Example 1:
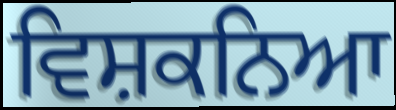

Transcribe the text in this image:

ਵਿਸ਼ਕਨਿਆ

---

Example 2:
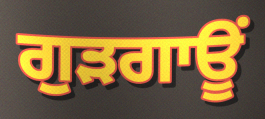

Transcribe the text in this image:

ਗੁੜਗਾਊਂ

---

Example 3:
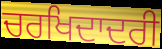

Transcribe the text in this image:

ਚਰਖਿਦਾਦਰੀ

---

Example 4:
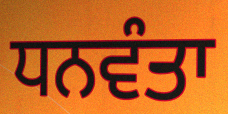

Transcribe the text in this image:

ਧਨਵੰਤਾ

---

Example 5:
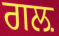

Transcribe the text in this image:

ਗਲ਼